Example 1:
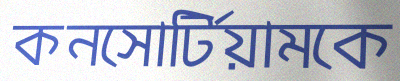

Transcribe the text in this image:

কনসোর্টিয়ামকে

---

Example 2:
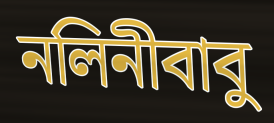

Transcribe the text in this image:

নলিনীবাবু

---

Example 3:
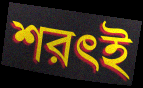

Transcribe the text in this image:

শরৎই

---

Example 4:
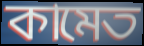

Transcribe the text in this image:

কামেত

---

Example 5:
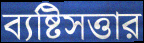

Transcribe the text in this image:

ব্যষ্টিসত্তার